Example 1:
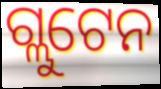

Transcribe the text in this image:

ଗ୍ଲୁଟେନ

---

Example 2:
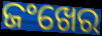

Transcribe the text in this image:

ଜଂଖେର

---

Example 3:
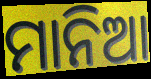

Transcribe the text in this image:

ମାନିଆ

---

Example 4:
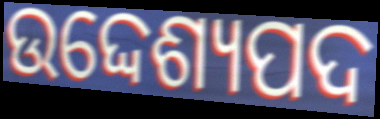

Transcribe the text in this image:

ଉଦ୍ଦେଶ୍ୟପଦ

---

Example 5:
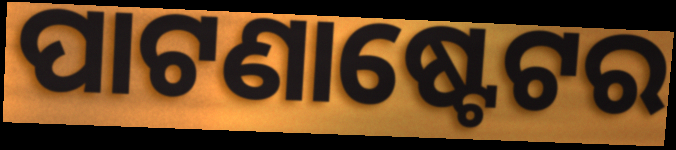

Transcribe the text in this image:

ପାଟଣାଷ୍ଟେଟର